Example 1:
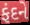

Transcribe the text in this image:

ફંદને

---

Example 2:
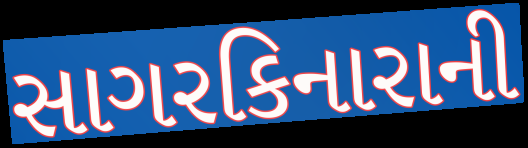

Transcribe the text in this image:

સાગરકિનારાની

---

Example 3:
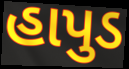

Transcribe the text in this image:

હાપુડ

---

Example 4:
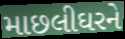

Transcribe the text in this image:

માછલીઘરને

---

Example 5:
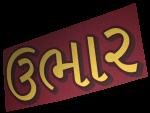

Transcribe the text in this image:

ઉભાર